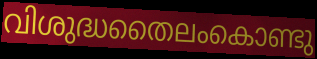
വിശുദ്ധതൈലംകൊണ്ടു